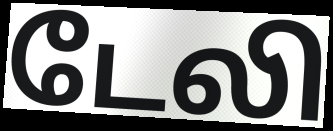
டேலி